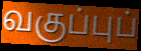
வகுப்புப்